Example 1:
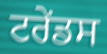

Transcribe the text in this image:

ਟਰੇਂਡਸ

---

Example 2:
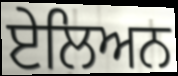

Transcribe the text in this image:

ਏਲਿਅਨ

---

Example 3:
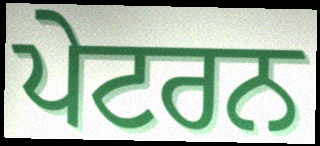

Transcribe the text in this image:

ਪੇਟਰਨ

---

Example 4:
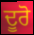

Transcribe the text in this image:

ਦੂਰੋ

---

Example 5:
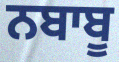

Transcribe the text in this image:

ਨਬਾਬੂ